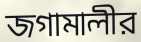
জগামালীর